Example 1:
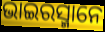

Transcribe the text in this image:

ଭାଇରସ୍ମାନେ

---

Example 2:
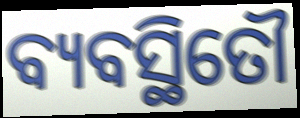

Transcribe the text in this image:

ବ୍ୟବସ୍ଥିତୌ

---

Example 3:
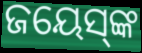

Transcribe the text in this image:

ଜୟେସ୍‌ଙ୍କ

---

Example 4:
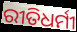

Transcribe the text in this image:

ରୀତିଧର୍ମୀ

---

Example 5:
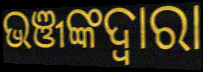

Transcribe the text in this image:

ଭଞ୍ଜଙ୍କଦ୍ୱାରା